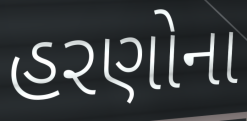
હરણોના